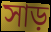
সাড়